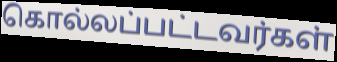
கொல்லப்பட்டவர்கள்